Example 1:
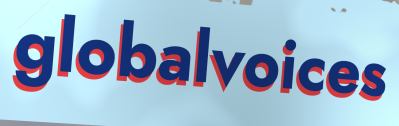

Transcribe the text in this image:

globalvoices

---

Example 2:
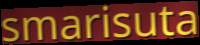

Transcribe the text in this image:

smarisuta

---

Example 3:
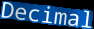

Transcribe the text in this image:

Decimal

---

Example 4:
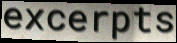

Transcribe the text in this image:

excerpts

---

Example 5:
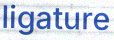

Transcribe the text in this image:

ligature